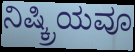
ನಿಷ್ಕ್ರಿಯವೂ